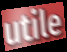
utile